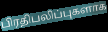
பிரதிபலிப்புகளாக